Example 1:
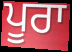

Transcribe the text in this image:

ਪੂਰਾ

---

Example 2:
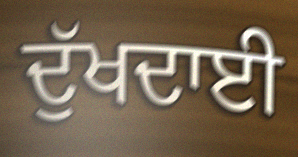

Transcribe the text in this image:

ਦੁੱਖਦਾਈ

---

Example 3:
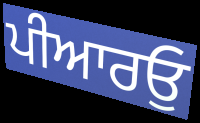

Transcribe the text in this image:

ਪੀਆਰਓੁ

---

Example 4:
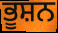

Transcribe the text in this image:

ਭੂਸ਼ਨ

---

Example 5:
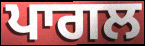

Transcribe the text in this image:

ਪਾਗਲ